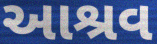
આશ્રવ